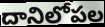
దానిలోపల